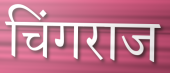
चिंगराज